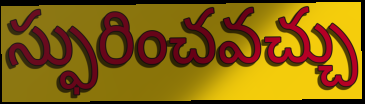
స్ఫురించవచ్చు